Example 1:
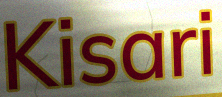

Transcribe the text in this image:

Kisari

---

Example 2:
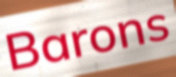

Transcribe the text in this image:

Barons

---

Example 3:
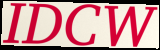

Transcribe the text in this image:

IDCW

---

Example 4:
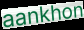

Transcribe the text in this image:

aankhon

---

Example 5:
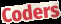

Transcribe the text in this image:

Coders